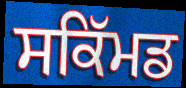
ਸਕਿੱਮਡ